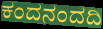
ಕಂದನಂದದಿ